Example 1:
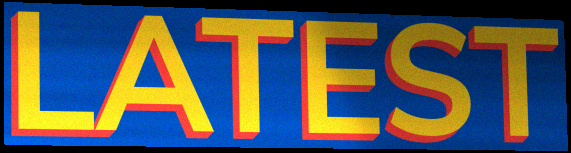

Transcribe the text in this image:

LATEST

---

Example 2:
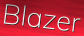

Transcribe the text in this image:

Blazer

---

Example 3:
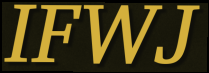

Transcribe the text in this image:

IFWJ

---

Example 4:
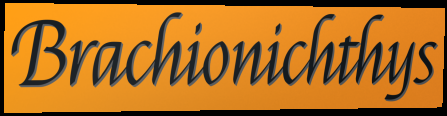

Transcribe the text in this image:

Brachionichthys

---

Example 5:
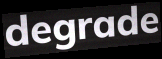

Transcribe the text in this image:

degrade